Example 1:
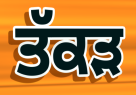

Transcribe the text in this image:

ਤੱਕੜ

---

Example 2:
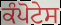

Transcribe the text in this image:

ਕੰਪੋਟੇਸ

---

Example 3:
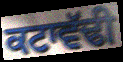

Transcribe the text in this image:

ਕਟਾਵੱਢੀ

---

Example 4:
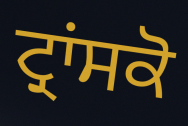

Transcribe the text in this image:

ਟ੍ਰਾਂਸਕੋ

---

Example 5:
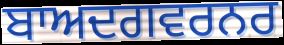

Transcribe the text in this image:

ਬਾਅਦਗਵਰਨਰ